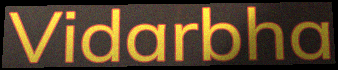
Vidarbha